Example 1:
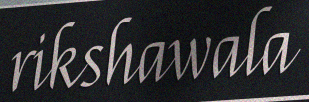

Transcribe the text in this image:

rikshawala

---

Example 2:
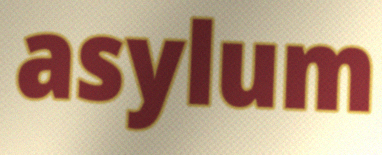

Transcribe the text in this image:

asylum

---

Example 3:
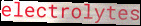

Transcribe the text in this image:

electrolytes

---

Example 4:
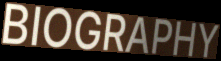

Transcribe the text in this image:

BIOGRAPHY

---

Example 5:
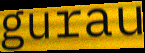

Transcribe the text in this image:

gurau